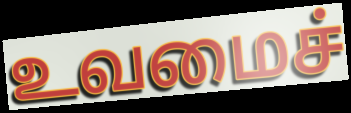
உவமைச்